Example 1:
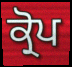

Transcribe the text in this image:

ਕ੍ਰੋਪ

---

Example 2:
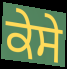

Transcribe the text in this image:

ਕੇਸੇ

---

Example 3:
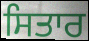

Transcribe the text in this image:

ਸਿਤਾਰ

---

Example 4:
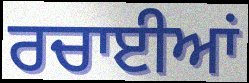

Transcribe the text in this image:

ਰਚਾਈਆਂ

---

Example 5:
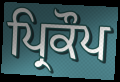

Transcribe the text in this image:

ਪ੍ਰਿਕੌਪ